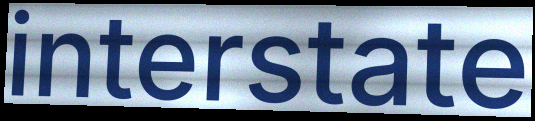
interstate